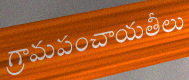
గ్రామపంచాయతీలు